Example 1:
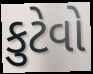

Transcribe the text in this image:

કુટેવો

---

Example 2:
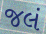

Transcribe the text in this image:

જલં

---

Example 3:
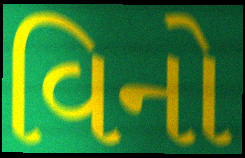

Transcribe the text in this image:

વિનો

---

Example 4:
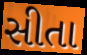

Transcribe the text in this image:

સીતા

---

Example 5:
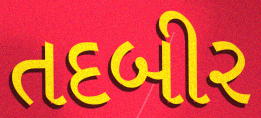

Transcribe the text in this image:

તદબીર